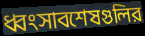
ধ্বংসাবশেষগুলির